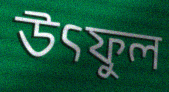
উৎফুল